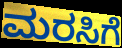
ಮರಸಿಗೆ